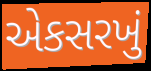
એકસરખું